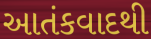
આતંકવાદથી